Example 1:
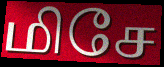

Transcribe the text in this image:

மிசே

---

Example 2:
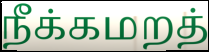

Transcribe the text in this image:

நீக்கமறத்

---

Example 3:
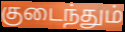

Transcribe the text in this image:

குடைந்தும்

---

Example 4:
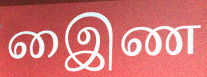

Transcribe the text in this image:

இைண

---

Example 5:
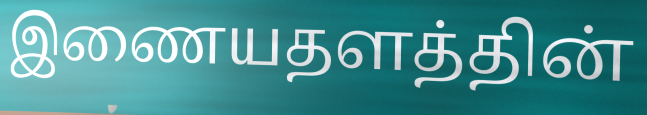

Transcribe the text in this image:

இணையதளத்தின்